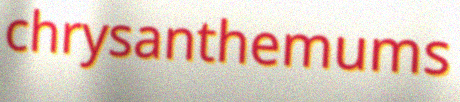
chrysanthemums